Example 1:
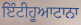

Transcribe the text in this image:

ਇੰਟੀਹੂਆਟਾਨਾ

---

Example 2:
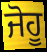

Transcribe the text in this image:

ਜੋਹੂ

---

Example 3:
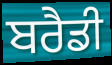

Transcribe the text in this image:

ਬਰੈਡੀ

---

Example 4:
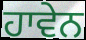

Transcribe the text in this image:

ਹਾਵੇਨ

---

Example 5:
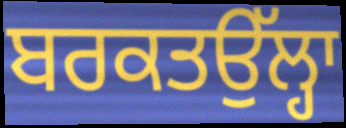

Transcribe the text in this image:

ਬਰਕਤਉੱਲ੍ਹਾ